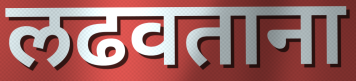
लढवताना